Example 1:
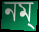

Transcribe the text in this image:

নম্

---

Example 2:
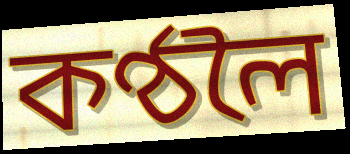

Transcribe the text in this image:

কণ্ঠলৈ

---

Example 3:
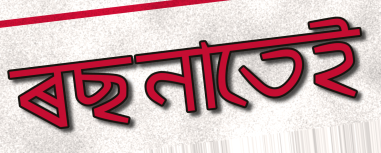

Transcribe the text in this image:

ৰছনাতেই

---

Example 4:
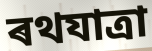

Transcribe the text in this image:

ৰথযাত্ৰা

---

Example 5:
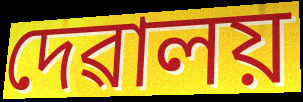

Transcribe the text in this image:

দেৱালয়